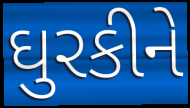
ઘુરકીને